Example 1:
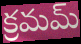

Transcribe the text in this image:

క్రమమ్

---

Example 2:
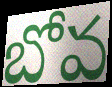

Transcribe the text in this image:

బోవ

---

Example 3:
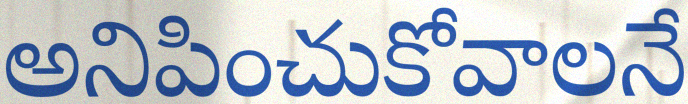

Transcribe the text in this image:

అనిపించుకోవాలనే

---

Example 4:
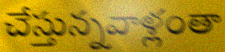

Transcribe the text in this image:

చేస్తున్నవాళ్లంతా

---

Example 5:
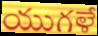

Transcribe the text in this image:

యుగళే